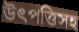
উৎপত্তিসহ